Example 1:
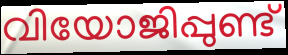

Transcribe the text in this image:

വിയോജിപ്പുണ്ട്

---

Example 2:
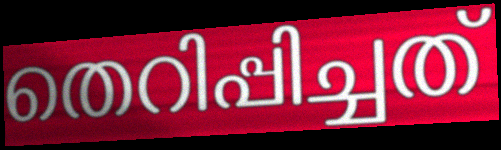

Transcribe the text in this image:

തെറിപ്പിച്ചത്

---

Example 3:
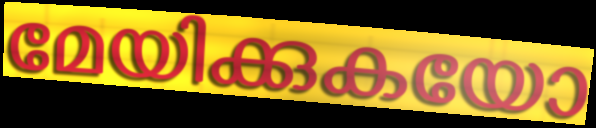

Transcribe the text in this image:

മേയിക്കുകയോ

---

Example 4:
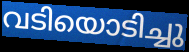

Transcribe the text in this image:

വടിയൊടിച്ചു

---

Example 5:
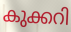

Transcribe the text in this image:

കുക്കറി